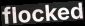
flocked